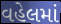
વહેલમાં